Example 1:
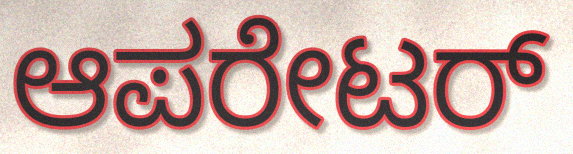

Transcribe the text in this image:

ಆಪರೇಟರ್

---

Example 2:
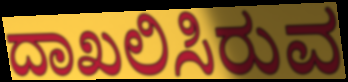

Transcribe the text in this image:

ದಾಖಲಿಸಿರುವ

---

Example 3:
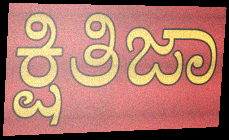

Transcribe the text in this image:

ಕ್ಷಿತಿಜಾ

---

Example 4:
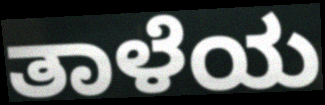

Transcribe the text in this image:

ತಾಳೆಯ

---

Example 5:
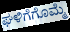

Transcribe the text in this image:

ಘಳಿಗೆಗೊಮ್ಮೆ